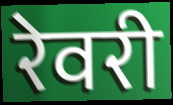
रेवरी